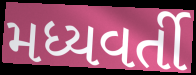
મધ્યવર્તી